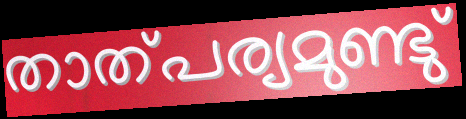
താത്പര്യമുണ്ടു്